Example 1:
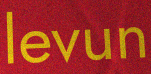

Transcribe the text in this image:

levun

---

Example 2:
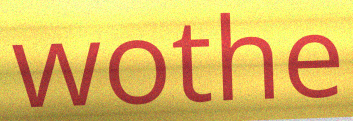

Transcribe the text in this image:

wothe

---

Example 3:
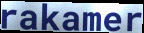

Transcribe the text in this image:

rakamer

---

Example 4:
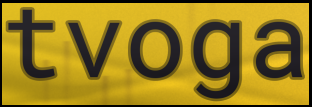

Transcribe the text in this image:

tvoga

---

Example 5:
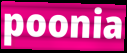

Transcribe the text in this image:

poonia